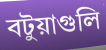
বটুয়াগুলি